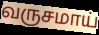
வருசமாய்